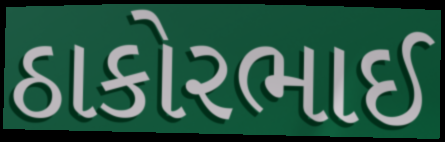
ઠાકોરભાઈ